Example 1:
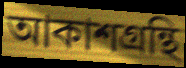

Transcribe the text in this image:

আকাশগ্রন্থি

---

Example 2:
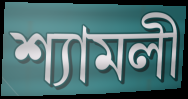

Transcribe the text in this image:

শ্যামলী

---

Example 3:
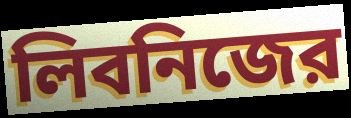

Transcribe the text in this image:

লিবনিজের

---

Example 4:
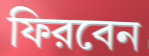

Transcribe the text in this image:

ফিরবেন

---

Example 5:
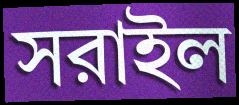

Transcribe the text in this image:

সরাইল